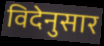
विदेनुसार